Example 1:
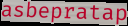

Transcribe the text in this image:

asbepratap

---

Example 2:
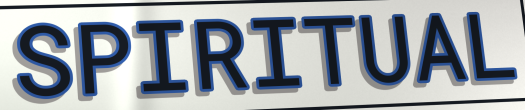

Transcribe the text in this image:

SPIRITUAL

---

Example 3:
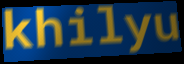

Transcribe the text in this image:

khilyu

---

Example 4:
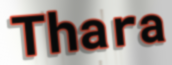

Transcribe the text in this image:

Thara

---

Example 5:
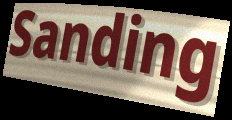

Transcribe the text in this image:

Sanding